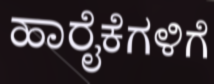
ಹಾರೈಕೆಗಳಿಗೆ